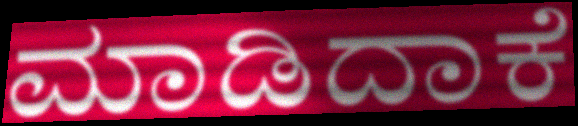
ಮಾಡಿದಾಕೆ